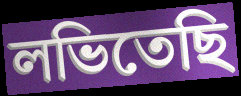
লভিতেছি